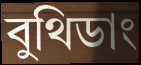
বুথিডাং